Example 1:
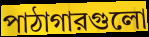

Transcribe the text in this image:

পাঠাগারগুলো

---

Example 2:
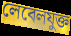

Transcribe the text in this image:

লেবেলযুক্ত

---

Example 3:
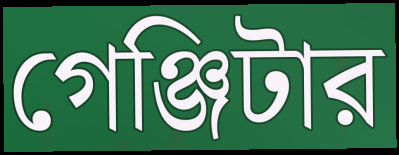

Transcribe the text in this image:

গেঞ্জিটার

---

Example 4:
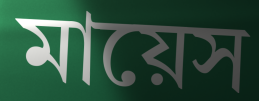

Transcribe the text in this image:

মায়েস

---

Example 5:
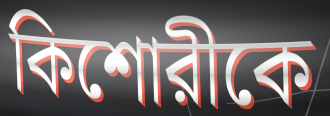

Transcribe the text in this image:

কিশোরীকে